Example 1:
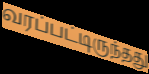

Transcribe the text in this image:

வரப்பட்டிருந்தது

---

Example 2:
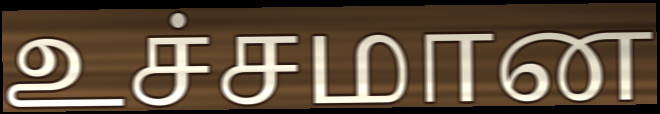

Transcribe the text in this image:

உச்சமான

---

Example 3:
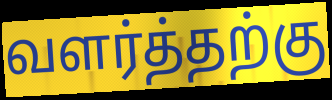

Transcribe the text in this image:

வளர்த்தற்கு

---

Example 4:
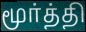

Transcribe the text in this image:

மூர்த்தி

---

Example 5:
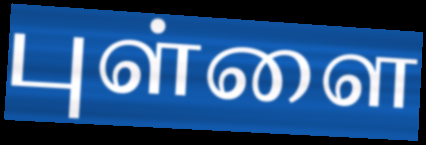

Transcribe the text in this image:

புள்ளை